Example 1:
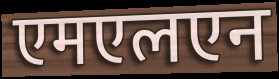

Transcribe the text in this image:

एमएलएन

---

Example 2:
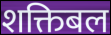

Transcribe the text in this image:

शक्तिबल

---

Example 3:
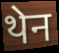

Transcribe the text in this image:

थेन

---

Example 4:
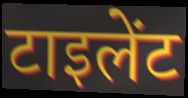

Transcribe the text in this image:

टाइलेंट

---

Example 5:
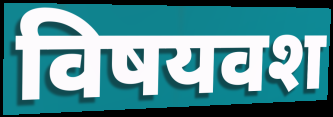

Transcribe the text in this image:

विषयवश